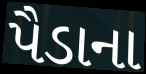
પૈડાના